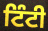
ਟਿੰਟੀ